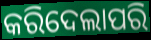
କରିଦେଲାପରି